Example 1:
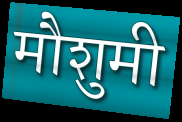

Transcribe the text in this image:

मौशुमी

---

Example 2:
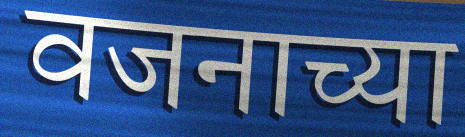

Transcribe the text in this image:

वजनाच्या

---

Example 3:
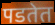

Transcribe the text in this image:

पडतेत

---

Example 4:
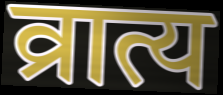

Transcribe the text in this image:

व्रात्य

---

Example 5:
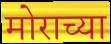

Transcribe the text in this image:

मोराच्या